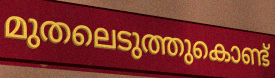
മുതലെടുത്തുകൊണ്ട്